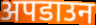
अपडाउन